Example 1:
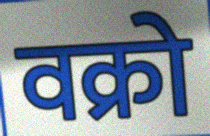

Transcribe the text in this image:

वक्रो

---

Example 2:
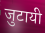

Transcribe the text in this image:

जुटायी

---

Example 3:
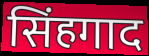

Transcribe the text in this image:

सिंहगाद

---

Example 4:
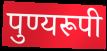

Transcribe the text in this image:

पुण्यरूपी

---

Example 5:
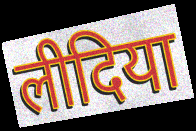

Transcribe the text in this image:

लीदिया